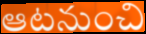
ఆటనుంచి